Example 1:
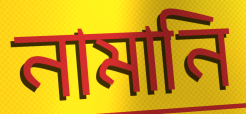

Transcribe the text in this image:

নামানি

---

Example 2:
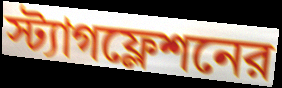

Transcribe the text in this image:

স্ট্যাগফ্লেশনের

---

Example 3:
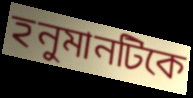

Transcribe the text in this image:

হনুমানটিকে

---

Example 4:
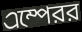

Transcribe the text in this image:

এম্পেরর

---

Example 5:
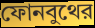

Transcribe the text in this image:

ফোনবুথের